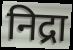
निद्रा